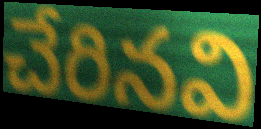
చేరినవి